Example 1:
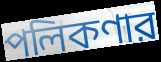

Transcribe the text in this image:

পলিকণার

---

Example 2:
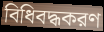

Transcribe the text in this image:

বিধিবদ্ধকরণ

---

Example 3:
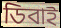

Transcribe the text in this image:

ডিবাই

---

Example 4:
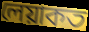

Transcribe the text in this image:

লেয়াকত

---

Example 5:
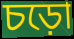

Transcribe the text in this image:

চড়ো